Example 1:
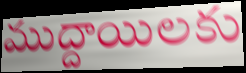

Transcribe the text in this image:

ముద్దాయిలకు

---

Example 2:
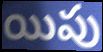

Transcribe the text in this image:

యిపు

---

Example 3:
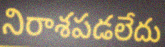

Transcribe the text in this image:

నిరాశపడలేదు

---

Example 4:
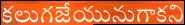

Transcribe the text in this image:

కలుగజేయునుగాకని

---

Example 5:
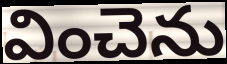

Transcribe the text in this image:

వించెను